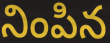
నింపిన